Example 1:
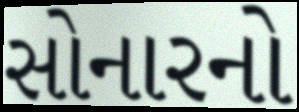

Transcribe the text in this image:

સોનારનો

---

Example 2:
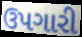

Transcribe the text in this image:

ઉપગારી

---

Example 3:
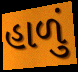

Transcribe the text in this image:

હાળું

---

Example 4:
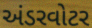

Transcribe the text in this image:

અંડરવોટર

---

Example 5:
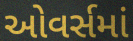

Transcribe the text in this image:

ઓવર્સમાં